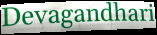
Devagandhari